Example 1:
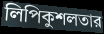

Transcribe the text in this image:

লিপিকুশলতার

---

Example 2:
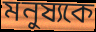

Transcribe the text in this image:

মনুষ্যকে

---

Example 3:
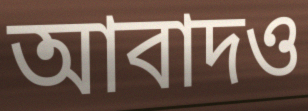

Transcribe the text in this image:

আবাদও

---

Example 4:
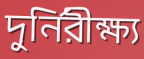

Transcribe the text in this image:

দুর্নিরীক্ষ্য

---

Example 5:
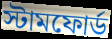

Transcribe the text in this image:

স্টামফোর্ড